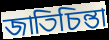
জাতিচিন্তা